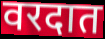
वरदात